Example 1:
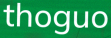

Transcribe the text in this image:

thoguo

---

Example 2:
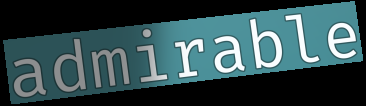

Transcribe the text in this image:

admirable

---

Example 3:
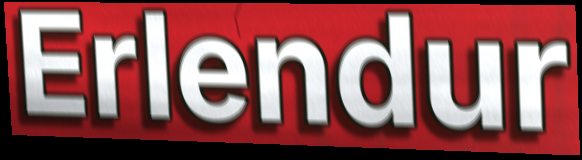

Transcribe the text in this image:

Erlendur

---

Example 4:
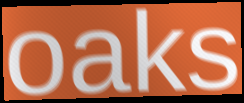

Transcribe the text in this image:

oaks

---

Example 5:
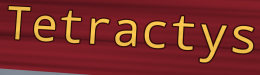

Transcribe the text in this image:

Tetractys